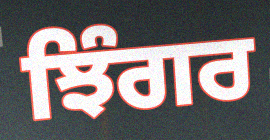
ਝਿੰਗਰ